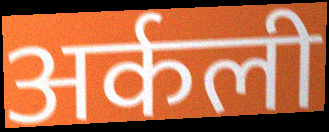
अर्कली